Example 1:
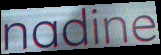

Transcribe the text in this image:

nadine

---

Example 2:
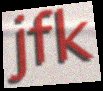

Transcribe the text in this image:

jfk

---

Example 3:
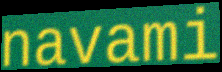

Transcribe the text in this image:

navami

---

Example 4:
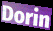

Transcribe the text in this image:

Dorin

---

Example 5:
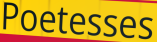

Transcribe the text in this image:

Poetesses